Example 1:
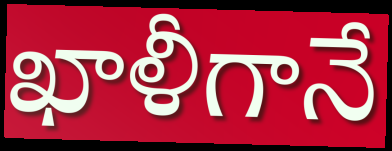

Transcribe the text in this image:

ఖాళీగానే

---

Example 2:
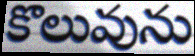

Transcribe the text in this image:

కొలువును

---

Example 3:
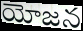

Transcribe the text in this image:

యోజన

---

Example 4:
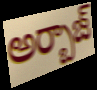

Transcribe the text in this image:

అర్బాజ్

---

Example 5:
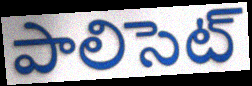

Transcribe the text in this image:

పాలిసెట్